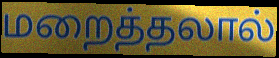
மறைத்தலால்